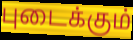
புடைக்கும்